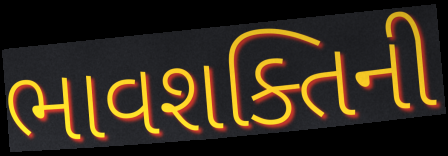
ભાવશક્તિની